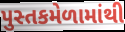
પુસ્તકમેળામાંથી